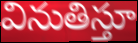
వినుతిస్తూ